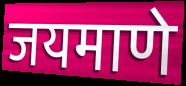
जयमाणे